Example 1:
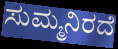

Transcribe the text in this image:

ಸುಮ್ಮನಿರದೆ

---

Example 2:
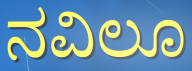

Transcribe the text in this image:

ನವಿಲೂ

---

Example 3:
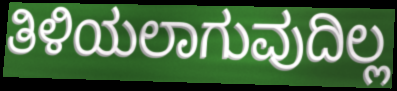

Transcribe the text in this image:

ತಿಳಿಯಲಾಗುವುದಿಲ್ಲ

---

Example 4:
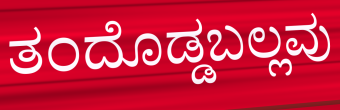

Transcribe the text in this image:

ತಂದೊಡ್ಡಬಲ್ಲವು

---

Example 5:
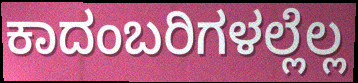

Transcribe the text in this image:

ಕಾದಂಬರಿಗಳಲ್ಲೆಲ್ಲ